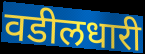
वडीलधारी